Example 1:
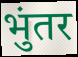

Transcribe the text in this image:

भुंतर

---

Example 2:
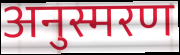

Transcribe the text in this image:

अनुस्मरण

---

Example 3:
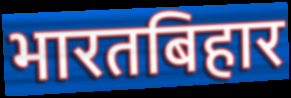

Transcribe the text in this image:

भारतबिहार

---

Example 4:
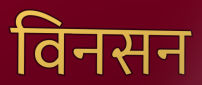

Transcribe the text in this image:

विनसन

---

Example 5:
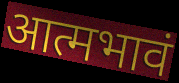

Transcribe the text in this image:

आत्मभावं